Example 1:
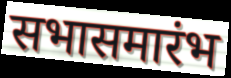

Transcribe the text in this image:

सभासमारंभ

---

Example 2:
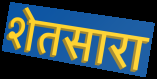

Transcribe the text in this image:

शेतसारा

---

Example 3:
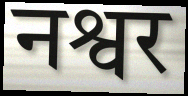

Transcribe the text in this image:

नश्वर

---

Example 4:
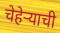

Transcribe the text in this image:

चेहेऱ्याची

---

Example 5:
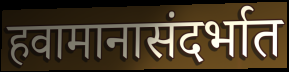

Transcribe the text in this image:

हवामानासंदर्भात